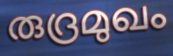
രുദ്രമുഖം